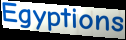
Egyptions